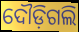
ଦୌଡ଼ିଗଲି